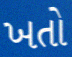
ખતો